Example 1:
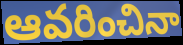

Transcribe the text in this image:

ఆవరించినా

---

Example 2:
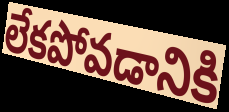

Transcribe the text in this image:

లేకపోవడానికి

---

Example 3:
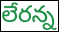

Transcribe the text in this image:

లేరన్న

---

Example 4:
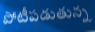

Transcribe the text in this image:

పోటీపడుతున్న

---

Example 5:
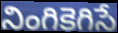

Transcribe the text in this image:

నింగికెగిసే